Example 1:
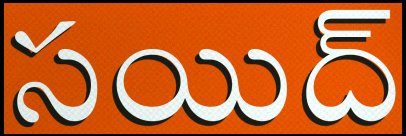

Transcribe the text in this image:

సయిద్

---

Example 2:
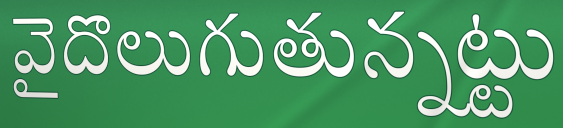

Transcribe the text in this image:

వైదొలుగుతున్నట్టు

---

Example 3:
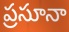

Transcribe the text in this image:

ప్రసూనా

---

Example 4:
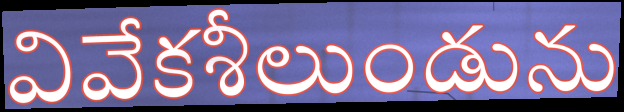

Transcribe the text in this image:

వివేకశీలుండును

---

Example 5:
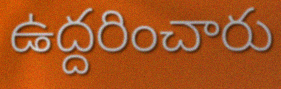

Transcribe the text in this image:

ఉద్దరించారు